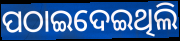
ପଠାଇଦେଇଥିଲି